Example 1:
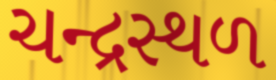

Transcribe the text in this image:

ચન્દ્રસ્થળ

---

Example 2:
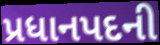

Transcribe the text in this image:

પ્રધાનપદની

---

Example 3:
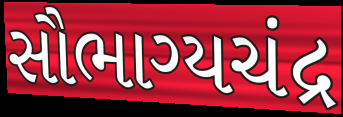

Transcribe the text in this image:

સૌભાગ્યચંદ્ર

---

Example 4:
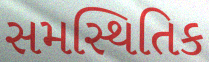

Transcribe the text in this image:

સમસ્થિતિક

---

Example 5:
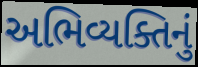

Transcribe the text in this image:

અભિવ્યક્તિનું